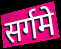
सर्गमे